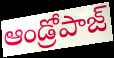
ఆండ్రోపాజ్